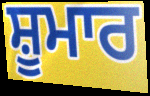
ਸ਼ੂਮਾਰ